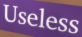
Useless